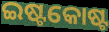
ଇଷ୍ଟକୋଷ୍ଟ